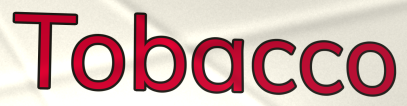
Tobacco